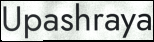
Upashraya